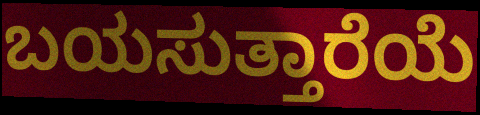
ಬಯಸುತ್ತಾರೆಯೆ